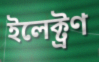
ইলেক্ট্ৰণ